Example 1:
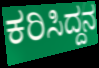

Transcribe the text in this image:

ಕರಿಸಿದ್ದನ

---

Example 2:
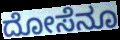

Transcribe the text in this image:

ದೋಸೆನೂ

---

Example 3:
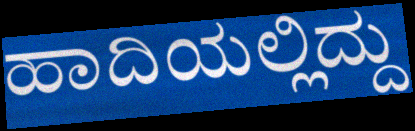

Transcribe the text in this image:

ಹಾದಿಯಲ್ಲಿದ್ದು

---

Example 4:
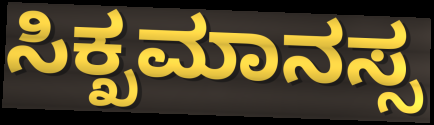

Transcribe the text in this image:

ಸಿಕ್ಖಮಾನಸ್ಸ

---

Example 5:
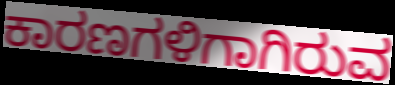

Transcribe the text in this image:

ಕಾರಣಗಳಿಗಾಗಿರುವ